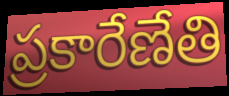
ప్రకారేణేతి